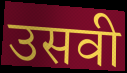
उसवी